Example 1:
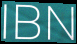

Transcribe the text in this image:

IBN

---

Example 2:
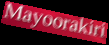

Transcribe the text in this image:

Mayoorakiri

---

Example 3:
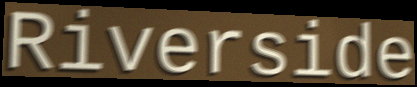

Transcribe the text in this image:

Riverside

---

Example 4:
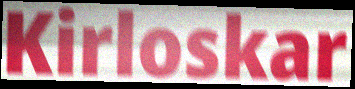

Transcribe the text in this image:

Kirloskar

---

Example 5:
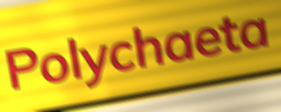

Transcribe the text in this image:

Polychaeta